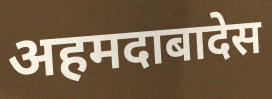
अहमदाबादेस